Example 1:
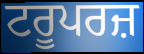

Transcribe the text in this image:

ਟਰੂਪਰਜ਼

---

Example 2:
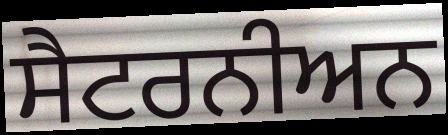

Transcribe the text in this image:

ਸੈਟਰਨੀਅਨ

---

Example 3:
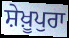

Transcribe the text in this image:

ਸ਼ੇਖ਼ੂਪੁਰਾ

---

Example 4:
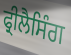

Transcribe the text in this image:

ਫ੍ਰੀਲੈਸਿੰਗ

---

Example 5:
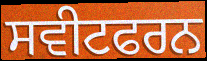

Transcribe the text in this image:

ਸਵੀਟਫਰਨ